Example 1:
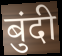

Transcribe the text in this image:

बुंदी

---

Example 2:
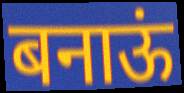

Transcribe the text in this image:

बनाऊं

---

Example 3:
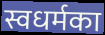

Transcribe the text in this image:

स्वधर्मका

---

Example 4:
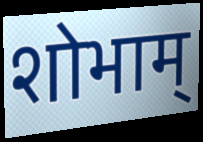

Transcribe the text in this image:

शोभाम्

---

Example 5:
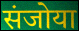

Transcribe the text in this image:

संजोया